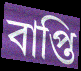
বাপ্তি